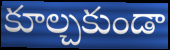
కూల్చకుండా